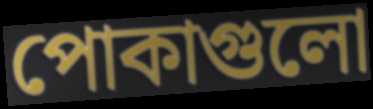
পোকাগুলো